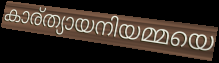
കാര്ത്യായനിയമ്മയെ